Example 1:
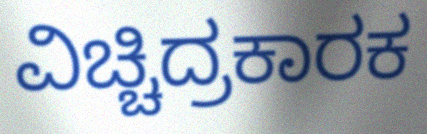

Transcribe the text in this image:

ವಿಚ್ಚಿದ್ರಕಾರಕ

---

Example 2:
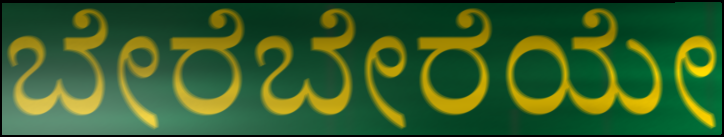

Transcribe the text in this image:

ಬೇರೆಬೇರೆಯೇ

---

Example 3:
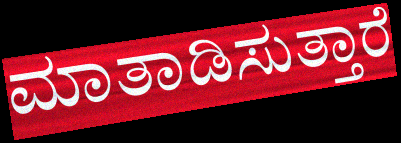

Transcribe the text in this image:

ಮಾತಾಡಿಸುತ್ತಾರೆ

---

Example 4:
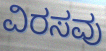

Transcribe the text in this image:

ವಿರಸವು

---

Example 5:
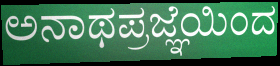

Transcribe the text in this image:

ಅನಾಥಪ್ರಜ್ಞೆಯಿಂದ